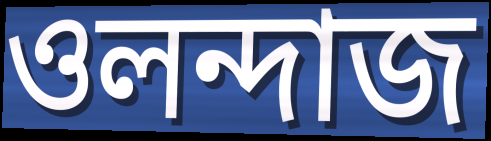
ওলন্দাজ